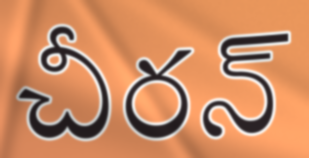
చీరన్